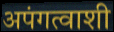
अपंगत्वाशी